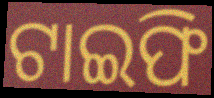
ଟାଇଫି